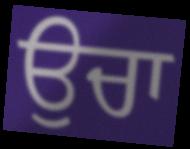
ਉਚਾ